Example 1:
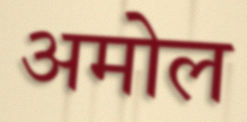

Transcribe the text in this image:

अमोल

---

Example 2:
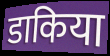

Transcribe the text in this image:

डाकिया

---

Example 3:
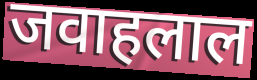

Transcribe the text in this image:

जवाहलाल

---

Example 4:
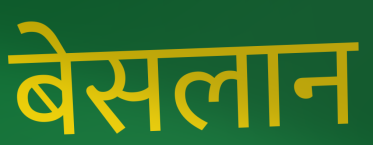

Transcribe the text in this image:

बेसलान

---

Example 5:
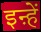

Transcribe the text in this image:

इऩ्हें